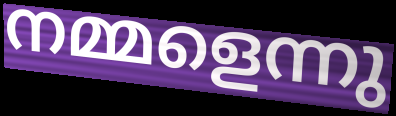
നമ്മളെന്നു